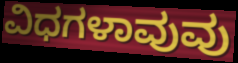
ವಿಧಗಳಾವುವು